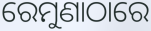
ରେମୁଣାଠାରେ